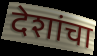
देशांचा